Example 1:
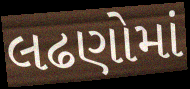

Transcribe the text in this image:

લઢણોમાં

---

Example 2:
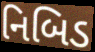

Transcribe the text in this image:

નિબિડ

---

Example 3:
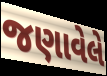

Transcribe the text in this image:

જણાવેલે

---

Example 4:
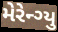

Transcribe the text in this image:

મેરેન્ગ્યુ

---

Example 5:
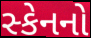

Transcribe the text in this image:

સ્કેનનો